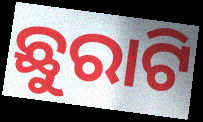
ଛୁରାଟି